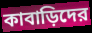
কাবাড়িদের